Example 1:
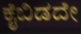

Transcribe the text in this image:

ಕೈಬಿಡದೇ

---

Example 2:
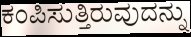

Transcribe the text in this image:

ಕಂಪಿಸುತ್ತಿರುವುದನ್ನು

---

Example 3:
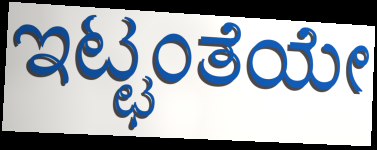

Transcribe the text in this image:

ಇಟ್ಟಂತೆಯೇ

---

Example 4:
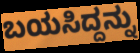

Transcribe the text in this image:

ಬಯಸಿದ್ದನ್ನು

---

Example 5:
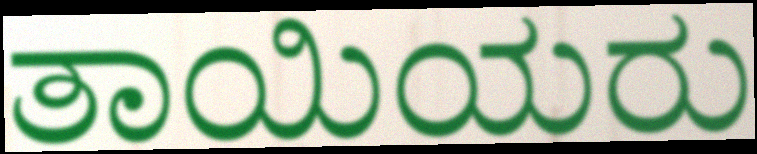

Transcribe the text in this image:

ತಾಯಿಯರು